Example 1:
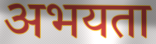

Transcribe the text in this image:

अभयता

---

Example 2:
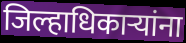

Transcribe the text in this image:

जिल्हाधिकाऱ्यांना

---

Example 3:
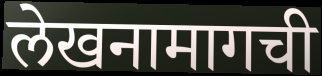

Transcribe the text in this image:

लेखनामागची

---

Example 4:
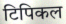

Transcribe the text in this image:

टिपिकल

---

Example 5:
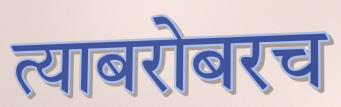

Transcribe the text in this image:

त्याबरोबरच